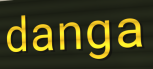
danga